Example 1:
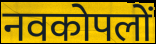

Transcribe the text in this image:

नवकोपलों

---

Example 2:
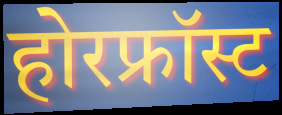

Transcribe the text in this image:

होरफ्रॉस्ट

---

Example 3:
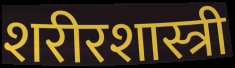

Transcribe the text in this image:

शरीरशास्त्री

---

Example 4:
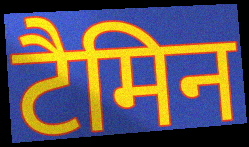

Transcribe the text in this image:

टैमिन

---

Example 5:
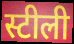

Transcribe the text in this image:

स्टीली